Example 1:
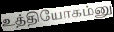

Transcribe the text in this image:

உத்தியோகம்னு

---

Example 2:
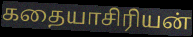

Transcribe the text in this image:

கதையாசிரியன்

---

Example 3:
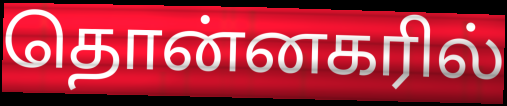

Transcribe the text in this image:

தொன்னகரில்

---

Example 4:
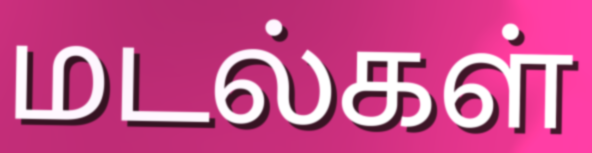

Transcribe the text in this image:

மடல்கள்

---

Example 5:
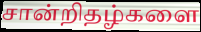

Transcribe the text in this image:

சான்றிதழ்களை